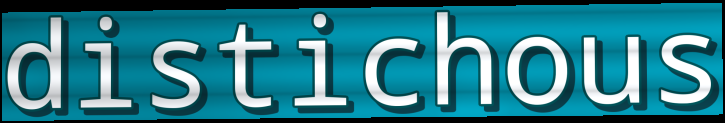
distichous